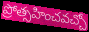
ప్రోత్సహించవచ్చో